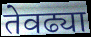
तेवढ्या